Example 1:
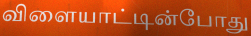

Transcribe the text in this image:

விளையாட்டின்போது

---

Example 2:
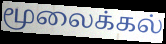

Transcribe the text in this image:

மூலைக்கல்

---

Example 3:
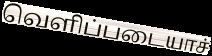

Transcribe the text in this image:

வெளிப்படையாச்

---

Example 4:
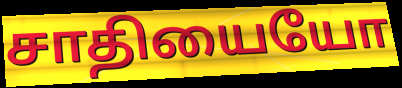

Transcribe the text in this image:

சாதியையோ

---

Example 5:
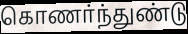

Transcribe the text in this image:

கொணர்ந்துண்டு